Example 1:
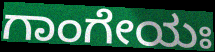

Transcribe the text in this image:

ಗಾಂಗೇಯಃ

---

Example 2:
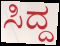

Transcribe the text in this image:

ಸಿದ್ದ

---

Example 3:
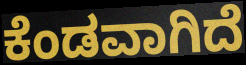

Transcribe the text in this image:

ಕೆಂಡವಾಗಿದೆ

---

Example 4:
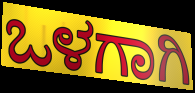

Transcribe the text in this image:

ಒಳಗಾಗಿ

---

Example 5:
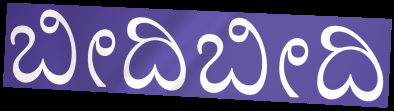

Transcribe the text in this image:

ಬೀದಿಬೀದಿ